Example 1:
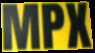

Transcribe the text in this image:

MPX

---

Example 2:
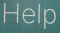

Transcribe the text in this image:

Help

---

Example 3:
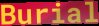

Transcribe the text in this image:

Burial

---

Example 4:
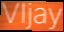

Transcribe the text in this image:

VIjay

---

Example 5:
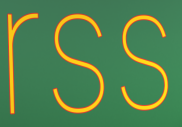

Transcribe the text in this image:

rss